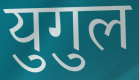
युगुल